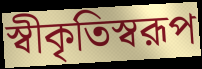
স্বীকৃতিস্বরূপ